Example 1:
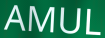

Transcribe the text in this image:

AMUL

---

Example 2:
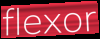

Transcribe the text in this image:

flexor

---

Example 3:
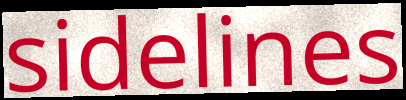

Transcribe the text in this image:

sidelines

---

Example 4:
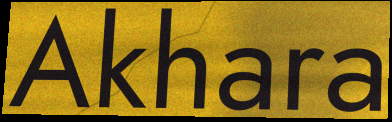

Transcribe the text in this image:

Akhara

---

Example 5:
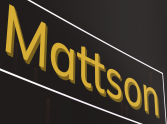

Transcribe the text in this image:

Mattson